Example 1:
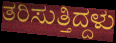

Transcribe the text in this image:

ತರಿಸುತ್ತಿದ್ದಳು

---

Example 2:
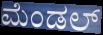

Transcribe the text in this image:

ಮೆಂಡಲ್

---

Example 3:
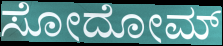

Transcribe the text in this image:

ಸೋದೋಮ್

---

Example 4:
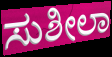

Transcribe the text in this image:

ಸುಶೀಲಾ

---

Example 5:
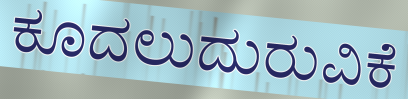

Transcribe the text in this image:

ಕೂದಲುದುರುವಿಕೆ